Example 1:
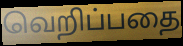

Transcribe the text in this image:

வெறிப்பதை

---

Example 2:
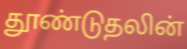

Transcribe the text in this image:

தூண்டுதலின்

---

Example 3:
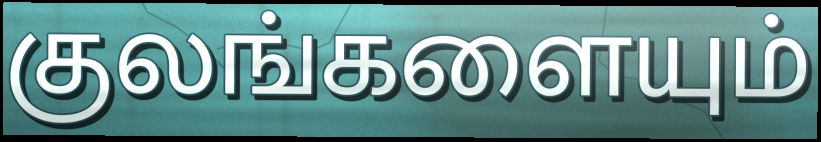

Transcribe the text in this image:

குலங்களையும்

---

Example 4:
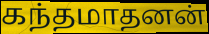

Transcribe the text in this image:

கந்தமாதனன்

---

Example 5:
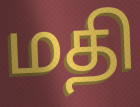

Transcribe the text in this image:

மதி